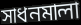
সাধনমালা